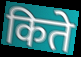
किते